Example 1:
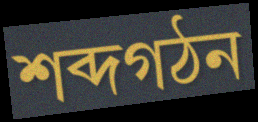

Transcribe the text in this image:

শব্দগঠন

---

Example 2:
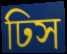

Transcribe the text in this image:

ঢিস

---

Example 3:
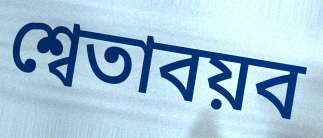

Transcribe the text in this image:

শ্বেতাবয়ব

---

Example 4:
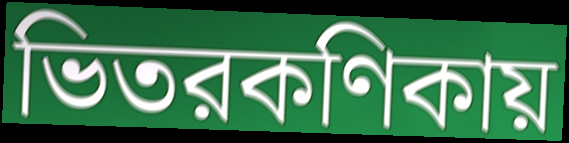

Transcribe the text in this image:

ভিতরকণিকায়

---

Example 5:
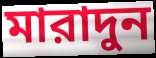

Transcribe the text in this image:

মারাদুন